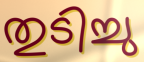
തുടിച്ചു